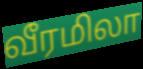
வீரமிலா